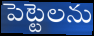
పెట్టెలను